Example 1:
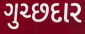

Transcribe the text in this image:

ગુચ્છદાર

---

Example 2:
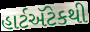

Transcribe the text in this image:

હાર્ટઍટેકથી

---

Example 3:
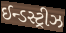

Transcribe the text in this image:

ઈન્ડસ્ટ્રીઝ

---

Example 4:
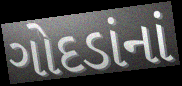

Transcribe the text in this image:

ગોદડાંનાં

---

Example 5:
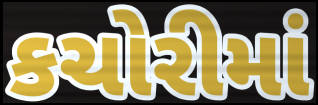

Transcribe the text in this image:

કચોરીમાં